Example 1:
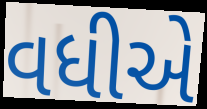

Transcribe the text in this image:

વધીએ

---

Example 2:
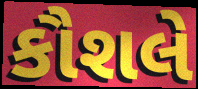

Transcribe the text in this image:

કૌશલે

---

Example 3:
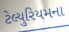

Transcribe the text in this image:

ટેલ્યુરિયમના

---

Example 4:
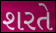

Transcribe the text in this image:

શરતે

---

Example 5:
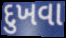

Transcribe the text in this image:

દુખવા